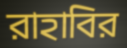
রাহাবির